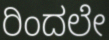
ರಿಂದಲೇ